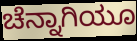
ಚೆನ್ನಾಗಿಯೂ